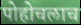
पोहोचलाच